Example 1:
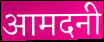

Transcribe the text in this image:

आमदनी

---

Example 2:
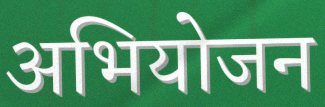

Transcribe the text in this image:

अभियोजन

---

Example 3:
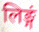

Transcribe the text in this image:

लिङ्गं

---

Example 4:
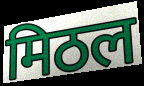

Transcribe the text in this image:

मिठल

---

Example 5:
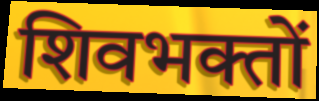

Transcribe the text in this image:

शिवभक्तों